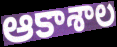
ఆకాశాల